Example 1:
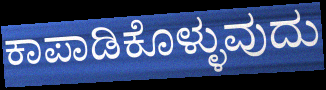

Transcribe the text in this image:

ಕಾಪಾಡಿಕೊಳ್ಳುವುದು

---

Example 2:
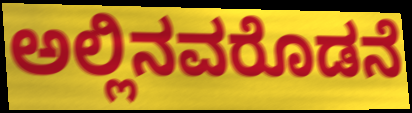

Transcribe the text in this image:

ಅಲ್ಲಿನವರೊಡನೆ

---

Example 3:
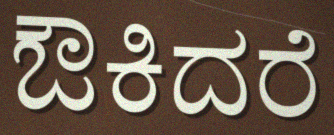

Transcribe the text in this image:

ಔಕಿದರೆ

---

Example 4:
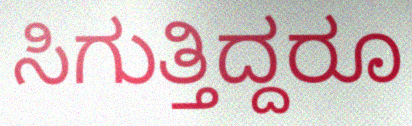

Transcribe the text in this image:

ಸಿಗುತ್ತಿದ್ದರೂ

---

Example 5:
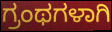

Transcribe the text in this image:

ಗ್ರಂಥಗಳಾಗಿ